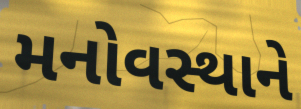
મનોવસ્થાને